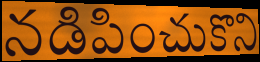
నడిపించుకొని